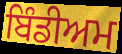
ਬਿੰਡੀਅਮ